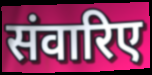
संवारिए